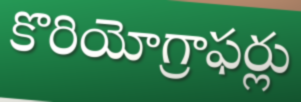
కొరియోగ్రాఫర్లు